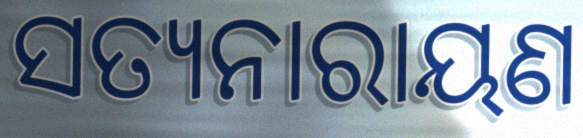
ସତ୍ୟନାରାୟଣ